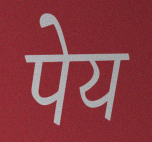
पेय